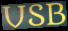
USB